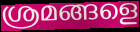
ശ്രമങ്ങളെ